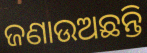
ଜଣାଉଅଛନ୍ତି